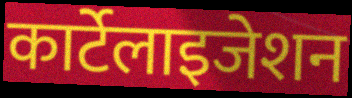
कार्टेलाइजेशन